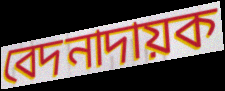
বেদনাদায়ক